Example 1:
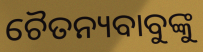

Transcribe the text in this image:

ଚୈତନ୍ୟବାବୁଙ୍କୁ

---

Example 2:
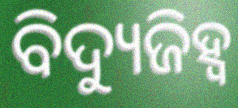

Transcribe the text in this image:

ବିଦ୍ୟୁଜିହ୍ୱ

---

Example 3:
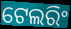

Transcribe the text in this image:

ଟେଲରିଂ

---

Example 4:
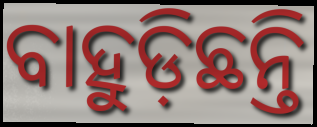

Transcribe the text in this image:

ବାହୁଡ଼ିଛନ୍ତି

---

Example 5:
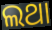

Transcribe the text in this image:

ଲଥା